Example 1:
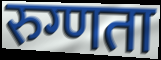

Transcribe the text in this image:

रुग्णता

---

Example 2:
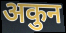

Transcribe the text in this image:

अकुन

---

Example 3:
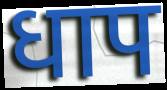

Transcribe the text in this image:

धाप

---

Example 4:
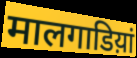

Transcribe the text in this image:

मालगाडिय़ां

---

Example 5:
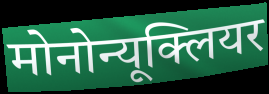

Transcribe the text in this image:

मोनोन्यूक्लियर